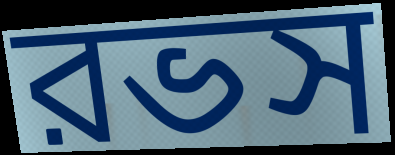
রভস